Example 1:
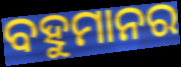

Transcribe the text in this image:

ବହୁମାନର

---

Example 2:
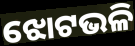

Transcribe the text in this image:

ଝୋଟଭଳି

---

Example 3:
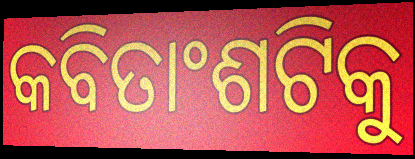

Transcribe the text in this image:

କବିତାଂଶଟିକୁ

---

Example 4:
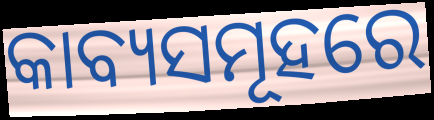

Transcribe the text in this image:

କାବ୍ୟସମୂହରେ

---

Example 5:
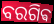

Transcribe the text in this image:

ବରଗିଵ